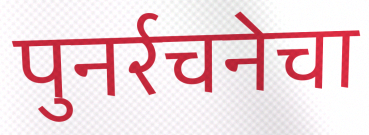
पुनर्रचनेचा